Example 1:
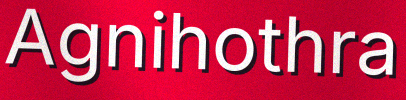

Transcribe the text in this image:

Agnihothra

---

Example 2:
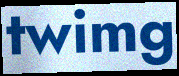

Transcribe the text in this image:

twimg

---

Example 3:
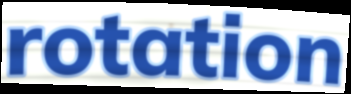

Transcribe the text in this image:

rotation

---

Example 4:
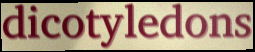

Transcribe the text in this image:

dicotyledons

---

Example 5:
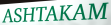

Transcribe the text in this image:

ASHTAKAM